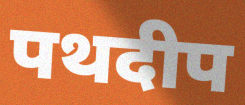
पथदीप